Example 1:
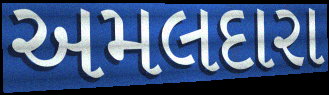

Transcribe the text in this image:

અમલદારા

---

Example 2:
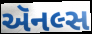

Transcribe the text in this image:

ઍનલ્સ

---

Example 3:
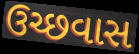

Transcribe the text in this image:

ઉચ્છવાસ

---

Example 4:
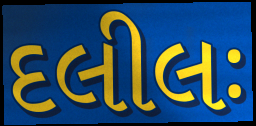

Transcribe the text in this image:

દલીલઃ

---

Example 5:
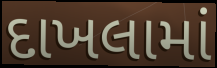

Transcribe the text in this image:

દાખલામાં